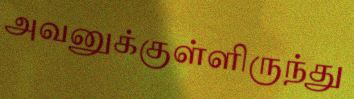
அவனுக்குள்ளிருந்து